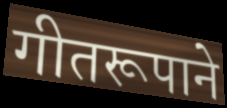
गीतरूपाने